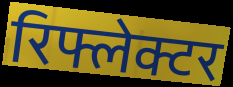
रिफ्लेक्टर